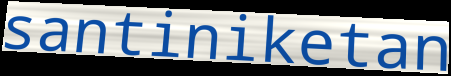
santiniketan